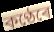
কণ্ঠেৰে